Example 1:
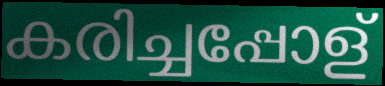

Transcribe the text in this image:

കരിച്ചപ്പോള്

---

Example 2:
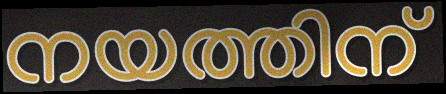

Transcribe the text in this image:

നയത്തിന്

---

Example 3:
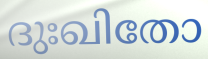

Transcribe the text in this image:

ദുഃഖിതോ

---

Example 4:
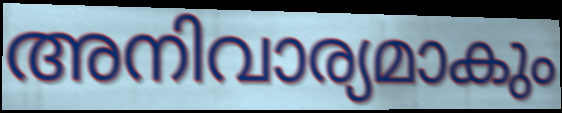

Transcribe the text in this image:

അനിവാര്യമാകും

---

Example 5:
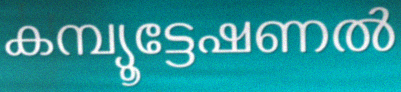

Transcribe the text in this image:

കമ്പ്യൂട്ടേഷണൽ